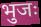
भुजः